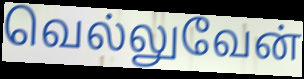
வெல்லுவேன்